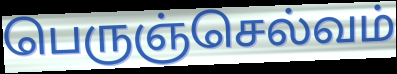
பெருஞ்செல்வம்